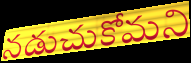
నడుచుకోమని